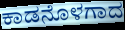
ಕಾಡನೊಳಗಾದ